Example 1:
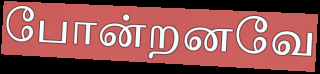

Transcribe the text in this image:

போன்றனவே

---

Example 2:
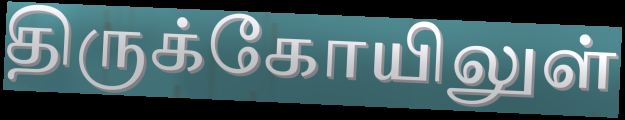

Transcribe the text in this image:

திருக்கோயிலுள்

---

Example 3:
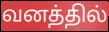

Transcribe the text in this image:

வனத்தில்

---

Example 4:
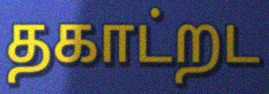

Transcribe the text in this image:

தகாட்றட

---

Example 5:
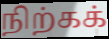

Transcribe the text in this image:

நிற்கக்